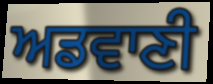
ਅਡਵਾਣੀ